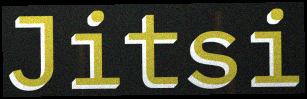
Jitsi